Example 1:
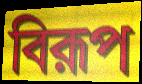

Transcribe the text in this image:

বিরূপ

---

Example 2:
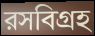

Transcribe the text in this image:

রসবিগ্রহ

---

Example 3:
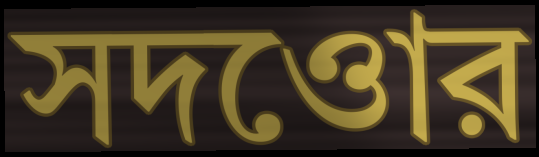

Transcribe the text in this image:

সদওোর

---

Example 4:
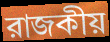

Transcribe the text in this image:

রাজকীয়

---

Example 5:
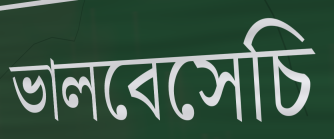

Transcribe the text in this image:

ভালবেসেচি